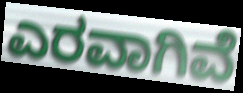
ಎರವಾಗಿವೆ